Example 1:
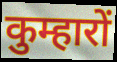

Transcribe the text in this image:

कुम्हारों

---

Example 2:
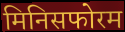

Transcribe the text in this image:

मिनिसफोरम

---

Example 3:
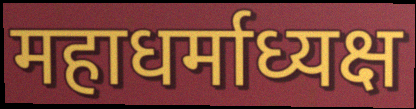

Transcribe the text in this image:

महाधर्माध्यक्ष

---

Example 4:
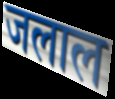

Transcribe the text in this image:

जलाल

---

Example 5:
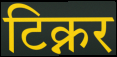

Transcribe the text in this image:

टिक्नर